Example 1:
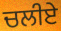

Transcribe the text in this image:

ਚਲੀਏ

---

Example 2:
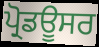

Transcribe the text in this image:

ਪ੍ਰੋਡਊਸਰ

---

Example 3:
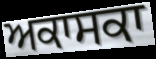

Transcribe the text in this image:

ਅਕਾਸਕਾ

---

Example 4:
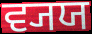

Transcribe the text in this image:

ਵ੍ਯਯ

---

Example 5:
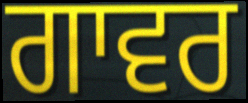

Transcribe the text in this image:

ਗਾਵਰ